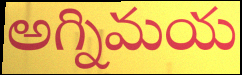
అగ్నిమయ